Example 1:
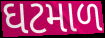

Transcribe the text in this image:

ઘટમાળ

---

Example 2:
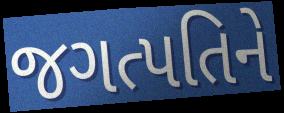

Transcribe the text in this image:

જગત્પતિને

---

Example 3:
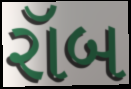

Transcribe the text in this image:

રૉબ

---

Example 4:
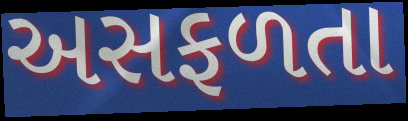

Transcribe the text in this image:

અસફળતા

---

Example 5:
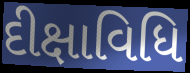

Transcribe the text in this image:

દીક્ષાવિધિ